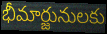
భీమార్జునులకు